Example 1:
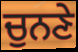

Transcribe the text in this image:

ਚੁਨਣੇ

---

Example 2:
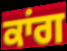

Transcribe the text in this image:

ਕਾਂਗ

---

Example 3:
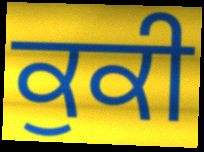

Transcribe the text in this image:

ਕੁਕੀ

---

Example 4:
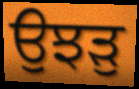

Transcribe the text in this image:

ਉਝੜੁ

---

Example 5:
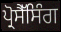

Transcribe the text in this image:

ਪ੍ਰੋਸੈੱਸਿੰਗ